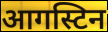
आगस्टिन